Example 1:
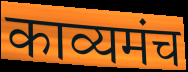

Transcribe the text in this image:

काव्यमंच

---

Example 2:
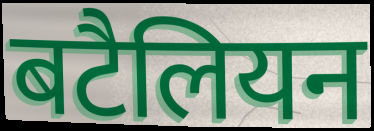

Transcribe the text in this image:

बटैलियन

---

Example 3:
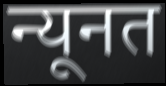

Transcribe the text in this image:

न्यूनत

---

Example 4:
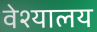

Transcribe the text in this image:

वेश्यालय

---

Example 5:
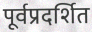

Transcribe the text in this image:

पूर्वप्रदर्शित